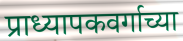
प्राध्यापकवर्गाच्या